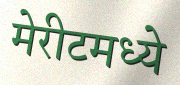
मेरीटमध्ये